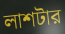
লাশটার